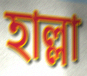
হাল্লা